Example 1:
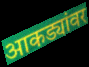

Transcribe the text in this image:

आकड्यांवर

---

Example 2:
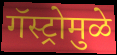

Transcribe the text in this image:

गॅस्ट्रोमुळे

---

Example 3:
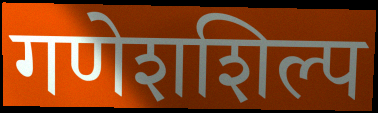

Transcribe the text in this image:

गणेशशिल्प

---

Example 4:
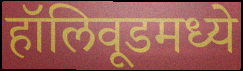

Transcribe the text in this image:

हॉलिवूडमध्ये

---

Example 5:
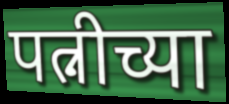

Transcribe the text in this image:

पत्नीच्या